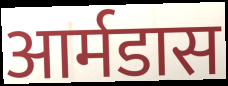
आर्मडास